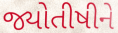
જ્યોતીષીને